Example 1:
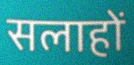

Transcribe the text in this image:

सलाहों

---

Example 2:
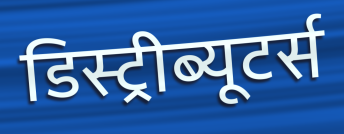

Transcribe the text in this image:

डिस्ट्रीब्यूटर्स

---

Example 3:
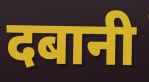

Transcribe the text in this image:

दबानी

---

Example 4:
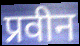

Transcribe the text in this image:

प्रवीन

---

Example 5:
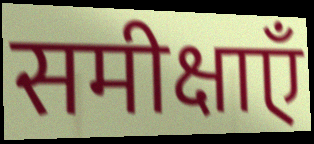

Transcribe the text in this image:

समीक्षाएँ